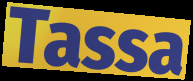
Tassa